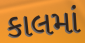
કાલમાં